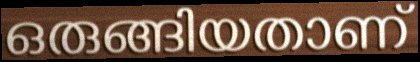
ഒരുങ്ങിയതാണ്